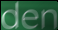
den